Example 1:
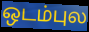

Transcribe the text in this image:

ஒடம்புல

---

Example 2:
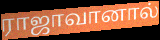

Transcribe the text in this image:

ராஜாவானால்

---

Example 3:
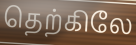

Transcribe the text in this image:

தெற்கிலே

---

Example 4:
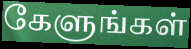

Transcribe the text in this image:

கேளுங்கள்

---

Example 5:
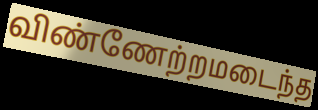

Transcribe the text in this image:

விண்ணேற்றமடைந்த